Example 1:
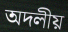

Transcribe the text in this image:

অদলীয়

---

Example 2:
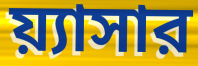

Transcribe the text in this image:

য়্যাসার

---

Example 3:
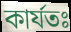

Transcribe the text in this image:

কার্যতঃ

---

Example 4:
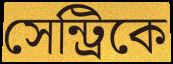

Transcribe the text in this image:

সেন্ট্রিকে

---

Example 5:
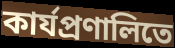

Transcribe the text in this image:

কার্যপ্রণালিতে